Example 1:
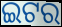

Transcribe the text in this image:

ଇଟର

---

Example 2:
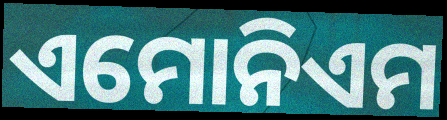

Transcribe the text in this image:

ଏମୋନିଏମ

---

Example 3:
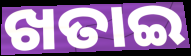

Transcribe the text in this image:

ଖତାଇ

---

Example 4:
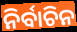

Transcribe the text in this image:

ନିର୍ବାଚିନ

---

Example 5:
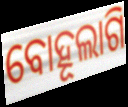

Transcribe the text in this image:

ବୋହୂଲାଗି